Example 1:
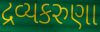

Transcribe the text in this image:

દ્રવ્યકરુણા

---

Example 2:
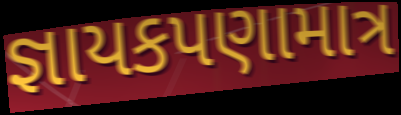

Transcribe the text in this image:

જ્ઞાયકપણામાત્ર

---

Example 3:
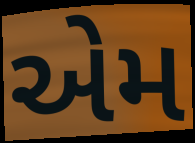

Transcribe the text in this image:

એેમ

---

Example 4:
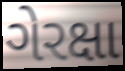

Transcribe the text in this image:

ગેરક્ષા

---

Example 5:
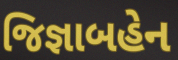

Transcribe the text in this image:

જિજ્ઞાબહેન